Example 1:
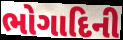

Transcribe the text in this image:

ભોગાદિની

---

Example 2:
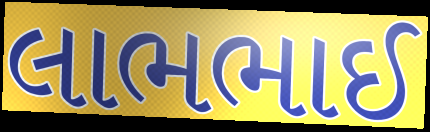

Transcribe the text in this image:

લાભભાઈ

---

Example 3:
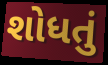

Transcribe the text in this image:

શોધતું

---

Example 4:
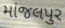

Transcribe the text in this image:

માંજલપુર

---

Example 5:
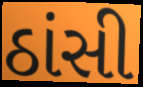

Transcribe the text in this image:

ઠાંસી